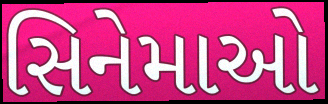
સિનેમાઓ